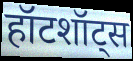
हॉटशॉट्स